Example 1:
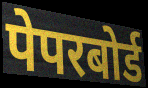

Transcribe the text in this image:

पेपरबोर्ड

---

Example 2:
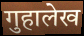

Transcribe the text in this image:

गुहालेख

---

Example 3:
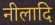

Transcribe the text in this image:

नीलादि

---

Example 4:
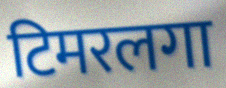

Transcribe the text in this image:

टिमरलगा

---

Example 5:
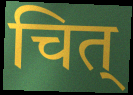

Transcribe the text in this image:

चित्